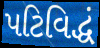
પટિવિદ્ધં